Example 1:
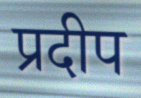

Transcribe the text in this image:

प्रदीप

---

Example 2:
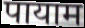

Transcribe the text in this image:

पायाम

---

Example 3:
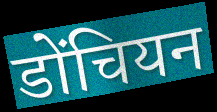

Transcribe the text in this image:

डोंचियन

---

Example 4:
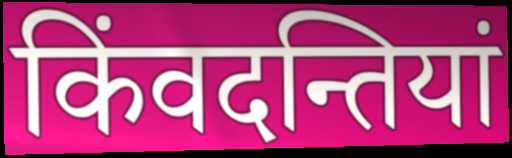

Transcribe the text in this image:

किंवदन्तियां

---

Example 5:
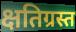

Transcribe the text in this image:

क्षतिग्रस्त